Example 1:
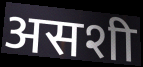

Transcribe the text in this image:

असशी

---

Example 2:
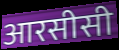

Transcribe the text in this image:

आरसीसी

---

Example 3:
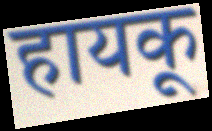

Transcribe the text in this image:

हायकू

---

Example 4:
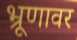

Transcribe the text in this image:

भ्रूणावर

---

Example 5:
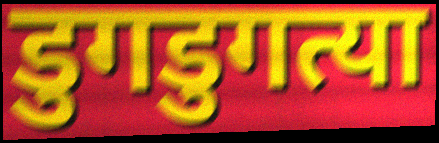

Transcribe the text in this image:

डुगडुगत्या